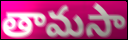
తామసా